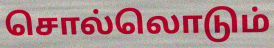
சொல்லொடும்